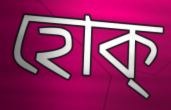
হোক্